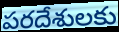
పరదేశులకు